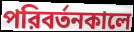
পরিবর্তনকালে